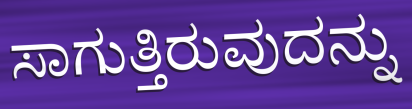
ಸಾಗುತ್ತಿರುವುದನ್ನು